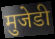
मुजेडी